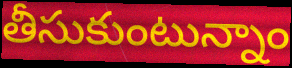
తీసుకుంటున్నాం